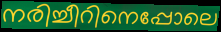
നരിച്ചീറിനെപ്പോലെ